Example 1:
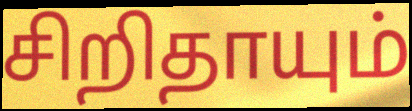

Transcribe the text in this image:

சிறிதாயும்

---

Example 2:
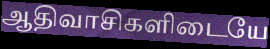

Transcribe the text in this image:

ஆதிவாசிகளிடையே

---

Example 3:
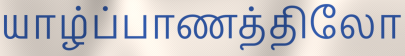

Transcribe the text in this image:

யாழ்ப்பாணத்திலோ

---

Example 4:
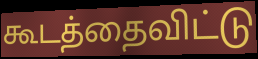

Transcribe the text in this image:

கூடத்தைவிட்டு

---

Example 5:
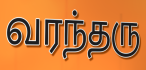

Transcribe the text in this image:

வரந்தரு